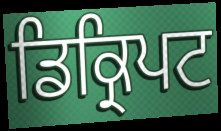
ਡਿਕ੍ਰਿਪਟ